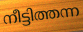
നീട്ടിത്തന്ന